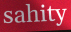
sahity